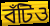
বঁটিও